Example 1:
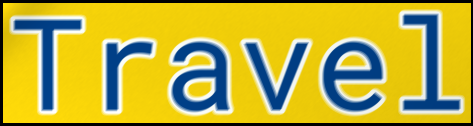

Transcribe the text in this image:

Travel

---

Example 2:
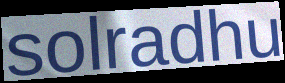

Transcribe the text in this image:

solradhu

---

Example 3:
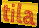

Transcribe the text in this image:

tila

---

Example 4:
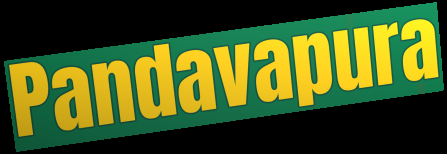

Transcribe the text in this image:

Pandavapura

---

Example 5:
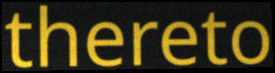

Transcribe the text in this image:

thereto